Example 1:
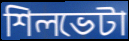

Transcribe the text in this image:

শিলভেটা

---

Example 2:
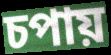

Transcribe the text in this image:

চপায়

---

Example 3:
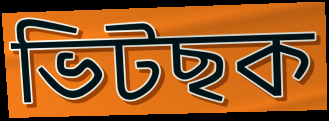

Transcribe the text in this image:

ভিটছক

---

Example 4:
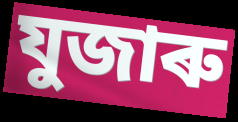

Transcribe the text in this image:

যুজাৰু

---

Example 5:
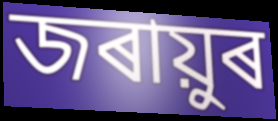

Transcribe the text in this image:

জৰায়ুৰ